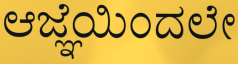
ಆಜ್ಞೆಯಿಂದಲೇ